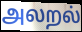
அலறல்